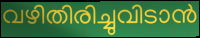
വഴിതിരിച്ചുവിടാൻ